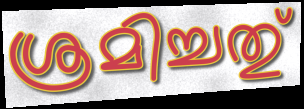
ശ്രമിച്ചതു്